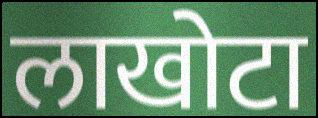
लाखोटा